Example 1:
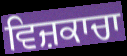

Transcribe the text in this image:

ਵਿਜ਼ਕਾਚਾ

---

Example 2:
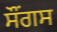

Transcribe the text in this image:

ਸੌਂਗਸ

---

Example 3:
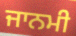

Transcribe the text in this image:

ਜਾਨਮੀ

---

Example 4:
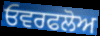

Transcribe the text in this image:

ਓਵਰਫਲੋਅ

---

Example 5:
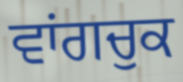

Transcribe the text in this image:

ਵਾਂਗਚੁਕ